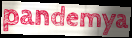
pandemya